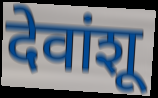
देवांशू